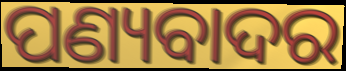
ପଣ୍ୟବାଦର